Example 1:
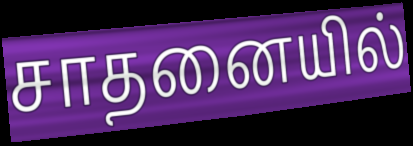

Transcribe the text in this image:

சாதனையில்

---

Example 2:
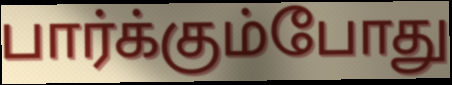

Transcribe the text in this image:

பார்க்கும்போது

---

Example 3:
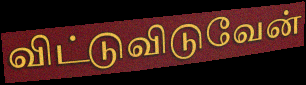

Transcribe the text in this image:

விட்டுவிடுவேன்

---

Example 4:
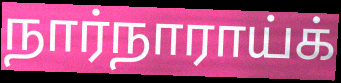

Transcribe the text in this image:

நார்நாராய்க்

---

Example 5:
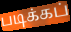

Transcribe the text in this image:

படிக்கப்